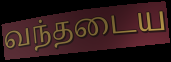
வந்தடைய